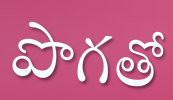
పొగతో